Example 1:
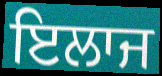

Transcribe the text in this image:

ਇਲਾਜ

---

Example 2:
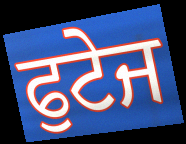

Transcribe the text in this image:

ਫੁਟੇਜ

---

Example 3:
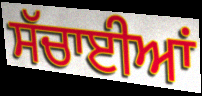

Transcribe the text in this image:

ਸੱਚਾਈਆਂ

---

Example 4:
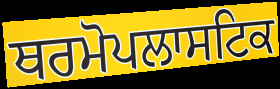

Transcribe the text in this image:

ਥਰਮੋਪਲਾਸਟਿਕ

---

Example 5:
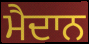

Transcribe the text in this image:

ਮੈਦਾਨ